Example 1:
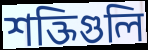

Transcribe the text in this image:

শক্তিগুলি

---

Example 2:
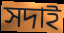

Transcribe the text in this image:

সদাই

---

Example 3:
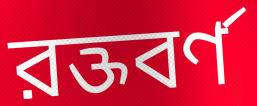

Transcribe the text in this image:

রক্তবর্ণ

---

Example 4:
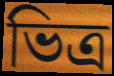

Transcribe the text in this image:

ভিত্র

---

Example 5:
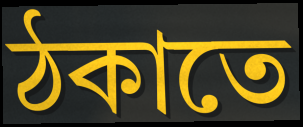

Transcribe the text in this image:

ঠকাতে